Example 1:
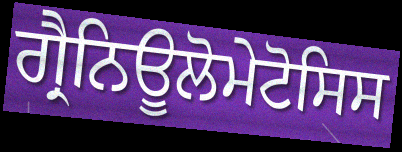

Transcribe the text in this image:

ਗ੍ਰੈਨਿਊਲੋਮੇਟੋਸਿਸ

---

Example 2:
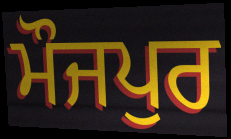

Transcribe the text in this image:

ਮੌਜਪੁਰ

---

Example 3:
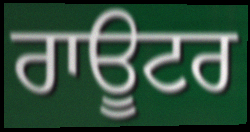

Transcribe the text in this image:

ਰਾਊਟਰ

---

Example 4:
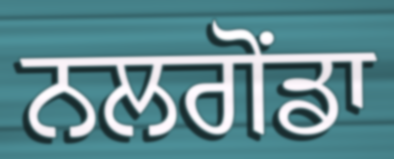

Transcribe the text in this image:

ਨਲਗੋਂਡਾ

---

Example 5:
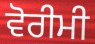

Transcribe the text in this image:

ਵੋਰੀਮੀ